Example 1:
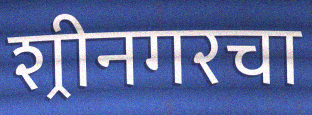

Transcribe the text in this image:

श्रीनगरचा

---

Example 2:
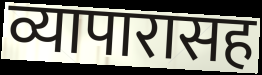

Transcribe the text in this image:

व्यापारासह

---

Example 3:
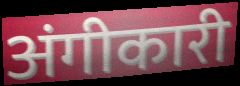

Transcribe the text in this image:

अंगीकारी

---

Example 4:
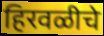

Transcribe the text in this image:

हिरवळीचे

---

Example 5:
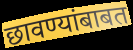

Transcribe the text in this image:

छावण्यांबाबत